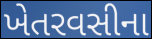
ખેતરવસીના